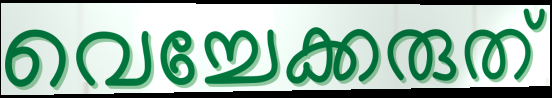
വെച്ചേക്കരുത്